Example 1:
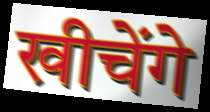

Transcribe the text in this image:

खीचेंगे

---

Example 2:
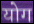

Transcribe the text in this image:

योग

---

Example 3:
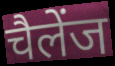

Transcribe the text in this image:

चैलेंज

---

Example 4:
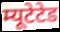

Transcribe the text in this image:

म्यूटेटेड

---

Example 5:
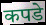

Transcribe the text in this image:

कपडे